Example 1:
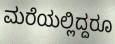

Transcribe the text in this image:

ಮರೆಯಲ್ಲಿದ್ದರೂ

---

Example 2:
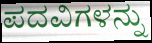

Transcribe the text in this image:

ಪದವಿಗಳನ್ನು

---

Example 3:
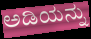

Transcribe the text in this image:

ಅಡಿಯನ್ನು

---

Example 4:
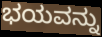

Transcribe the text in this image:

ಭಯವನ್ನು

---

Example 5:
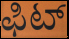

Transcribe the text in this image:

ಫಿಟ್